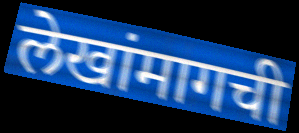
लेखांमागची